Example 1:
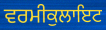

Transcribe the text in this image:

ਵਰਮੀਕੁਲਾਇਟ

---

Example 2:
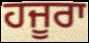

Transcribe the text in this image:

ਹਜੂਰਾ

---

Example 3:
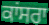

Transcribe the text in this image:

ਕਾਂਸਰਾ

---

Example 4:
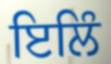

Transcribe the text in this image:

ਇਲਿੰ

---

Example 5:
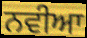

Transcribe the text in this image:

ਨਵੀਆ